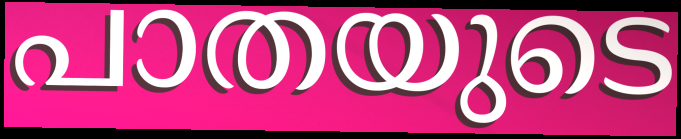
പാതയുടെ